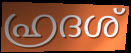
ഹ്രദശ്